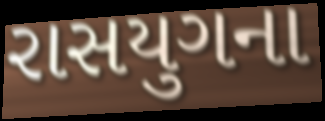
રાસયુગના